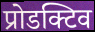
प्रोडक्टिव